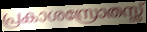
പ്രകാശസ്രോതസ്സ്